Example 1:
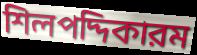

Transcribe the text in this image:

শিলপদ্দিকারম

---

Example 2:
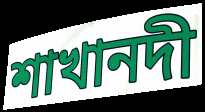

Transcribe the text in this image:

শাখানদী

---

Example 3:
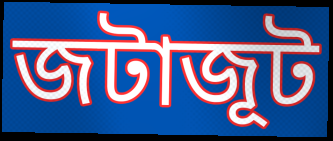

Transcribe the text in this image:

জটাজূট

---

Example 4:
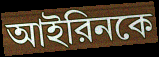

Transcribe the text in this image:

আইরিনকে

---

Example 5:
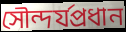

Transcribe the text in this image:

সৌন্দর্যপ্রধান